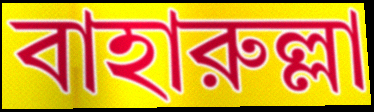
বাহারুল্লা